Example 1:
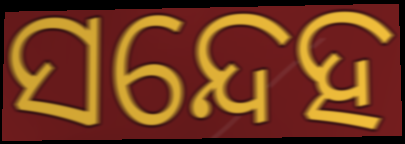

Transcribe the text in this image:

ସନ୍ଦେହ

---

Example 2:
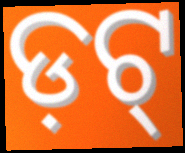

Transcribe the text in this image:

ଡ଼ଟ୍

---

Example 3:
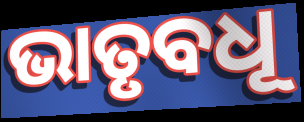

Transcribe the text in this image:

ଭାତୃବଧୂ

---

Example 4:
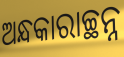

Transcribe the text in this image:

ଅନ୍ଧକାରାଚ୍ଛନ୍ନ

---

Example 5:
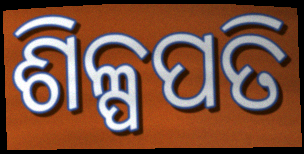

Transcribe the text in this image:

ଶିଳ୍ପପତି